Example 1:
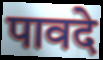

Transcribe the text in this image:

पावदे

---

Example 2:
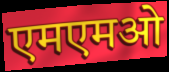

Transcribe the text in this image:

एमएमओ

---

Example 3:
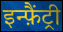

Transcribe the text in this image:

इन्फ़ैंट्री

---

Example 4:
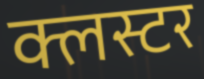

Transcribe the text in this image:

क्लस्टर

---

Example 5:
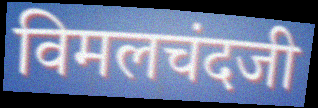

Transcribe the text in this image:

विमलचंदजी